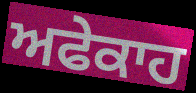
ਅਫੇਕਾਹ